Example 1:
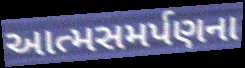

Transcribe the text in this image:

આત્મસમર્પણના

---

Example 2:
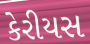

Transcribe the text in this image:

કેરીયસ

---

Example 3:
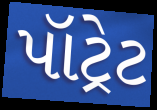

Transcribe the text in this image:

પૉટ્રેટ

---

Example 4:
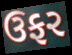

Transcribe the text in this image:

ઉફર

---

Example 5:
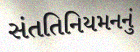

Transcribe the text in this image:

સંતતિનિયમનનું